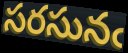
సరసునఁ